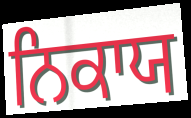
ਨਿਕਾਯ